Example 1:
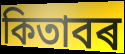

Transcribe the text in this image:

কিতাবৰ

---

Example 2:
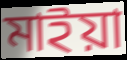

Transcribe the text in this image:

মাইয়া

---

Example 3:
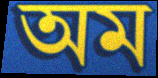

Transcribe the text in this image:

অম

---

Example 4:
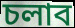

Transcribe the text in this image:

চলাব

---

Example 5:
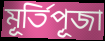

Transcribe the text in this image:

মূৰ্তিপূজা